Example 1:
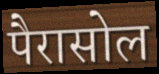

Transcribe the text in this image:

पैरासोल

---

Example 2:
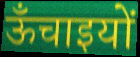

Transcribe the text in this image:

ऊँचाइयों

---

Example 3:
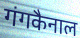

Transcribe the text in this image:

गंगकैनाल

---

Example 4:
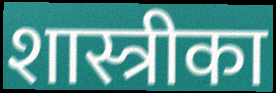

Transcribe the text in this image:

शास्त्रीका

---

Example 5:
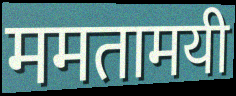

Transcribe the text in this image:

ममतामयी